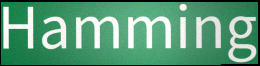
Hamming